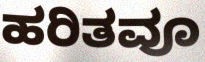
ಹರಿತವೂ